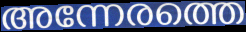
അന്നേരത്തെ